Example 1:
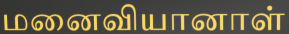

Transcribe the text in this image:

மனைவியானாள்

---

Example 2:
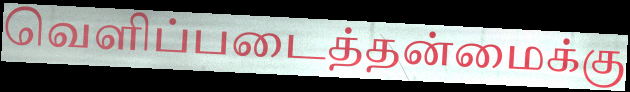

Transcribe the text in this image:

வெளிப்படைத்தன்மைக்கு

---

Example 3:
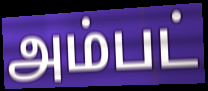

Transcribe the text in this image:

அம்பட்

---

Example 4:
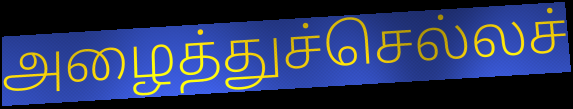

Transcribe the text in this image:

அழைத்துச்செல்லச்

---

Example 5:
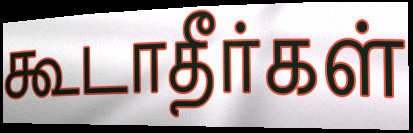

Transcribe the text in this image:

கூடாதீர்கள்